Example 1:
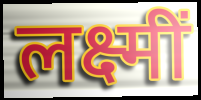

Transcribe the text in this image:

लक्ष्मीं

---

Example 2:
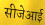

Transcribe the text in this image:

सीजेआई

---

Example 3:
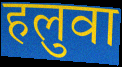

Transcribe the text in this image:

हलुवा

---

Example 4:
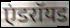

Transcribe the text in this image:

एंडरॉयड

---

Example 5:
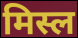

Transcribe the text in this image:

मिस्ल